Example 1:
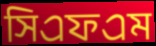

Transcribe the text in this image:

সিএফএম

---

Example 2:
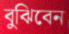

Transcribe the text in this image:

বুঝিবেন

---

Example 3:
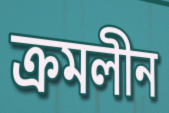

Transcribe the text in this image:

ক্রমলীন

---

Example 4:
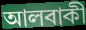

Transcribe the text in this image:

আলবাকী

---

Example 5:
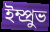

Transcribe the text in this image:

ইম্প্রুভ